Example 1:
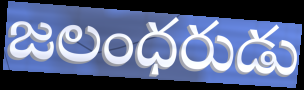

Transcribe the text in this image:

జలంధరుడు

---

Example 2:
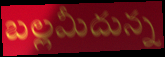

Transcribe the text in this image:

బల్లమీదున్న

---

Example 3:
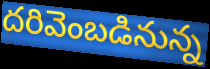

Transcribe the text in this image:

దరివెంబడినున్న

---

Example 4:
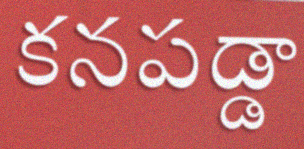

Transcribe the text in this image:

కనపడ్డా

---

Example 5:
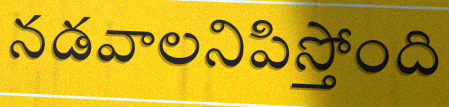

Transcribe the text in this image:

నడవాలనిపిస్తోంది